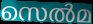
സെൽമ